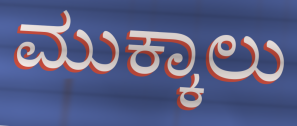
ಮುಕ್ಕಾಲು